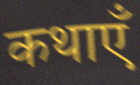
कथाएँ